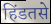
हिंडतसे